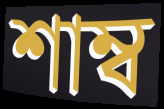
শাম্ব